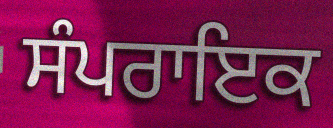
ਸੰਪਰਾਇਕ